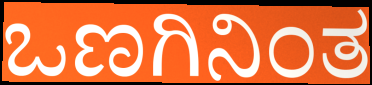
ಒಣಗಿನಿಂತ